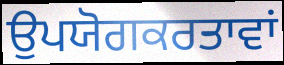
ਉਪਯੋਗਕਰਤਾਵਾਂ